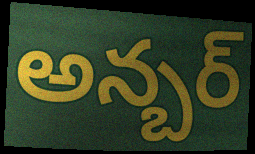
అన్బర్